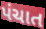
પંચાત